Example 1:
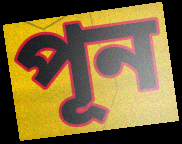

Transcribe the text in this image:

পূন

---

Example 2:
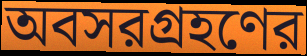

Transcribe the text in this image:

অবসরগ্রহণের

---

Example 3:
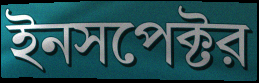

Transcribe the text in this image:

ইনসপেক্টর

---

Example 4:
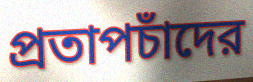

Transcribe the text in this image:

প্রতাপচাঁদের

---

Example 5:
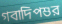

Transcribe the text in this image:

গবাদিপশুর